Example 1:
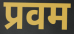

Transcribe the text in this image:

प्रवम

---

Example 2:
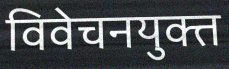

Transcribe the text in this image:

विवेचनयुक्त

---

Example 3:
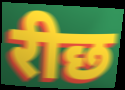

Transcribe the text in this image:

रीछ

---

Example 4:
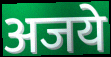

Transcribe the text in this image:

अजये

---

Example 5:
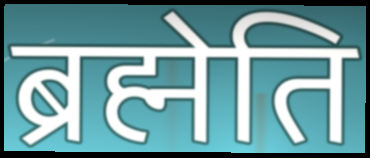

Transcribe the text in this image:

ब्रह्मेति